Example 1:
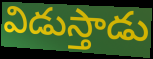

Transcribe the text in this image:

విడుస్తాడు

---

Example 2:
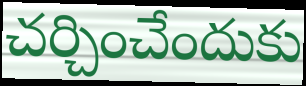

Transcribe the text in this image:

చర్చించేందుకు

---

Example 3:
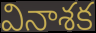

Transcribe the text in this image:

వినాశక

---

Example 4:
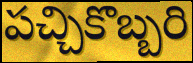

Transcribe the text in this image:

పచ్చికొబ్బరి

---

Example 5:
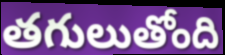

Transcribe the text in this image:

తగులుతోంది